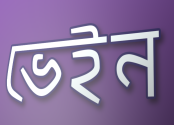
ভেইন